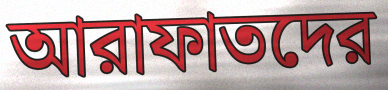
আরাফাতদের